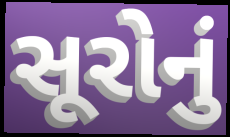
સૂરોનું